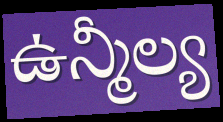
ఉన్మీల్య